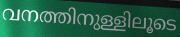
വനത്തിനുള്ളിലൂടെ